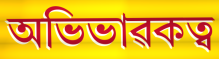
অভিভাৱকত্ব